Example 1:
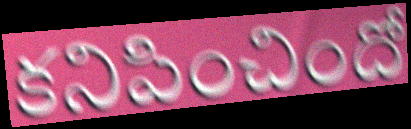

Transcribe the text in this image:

కనిపించిందో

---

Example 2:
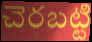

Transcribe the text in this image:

చెరబట్టి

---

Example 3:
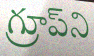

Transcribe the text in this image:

గ్రూప్‌ని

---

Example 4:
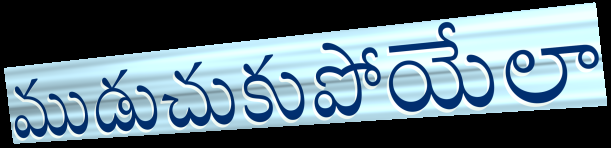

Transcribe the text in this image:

ముడుచుకుపోయేలా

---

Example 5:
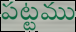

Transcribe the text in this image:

పట్టము